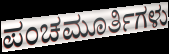
ಪಂಚಮೂರ್ತಿಗಳು